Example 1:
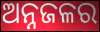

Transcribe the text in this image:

ଅନ୍ନଜଳର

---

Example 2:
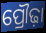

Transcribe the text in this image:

ପ୍ରୌଢ଼ା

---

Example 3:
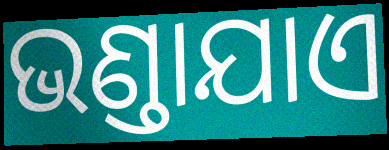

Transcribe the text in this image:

ଭଣ୍ଡାଯାଏ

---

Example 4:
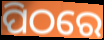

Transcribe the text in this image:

ପିଠରେ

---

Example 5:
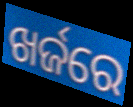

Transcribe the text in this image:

ଖର୍ଜରେ